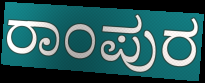
ರಾಂಪುರ